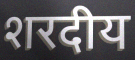
शरदीय